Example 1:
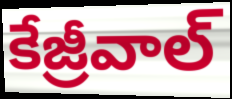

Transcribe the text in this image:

కేజ్రీవాల్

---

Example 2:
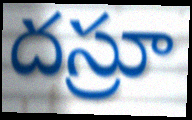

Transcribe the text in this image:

దస్రూ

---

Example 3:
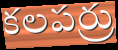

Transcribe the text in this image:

కలపర్రు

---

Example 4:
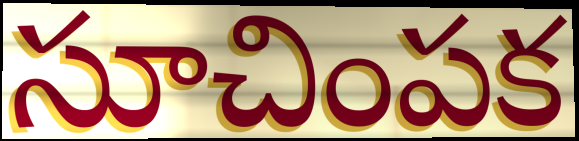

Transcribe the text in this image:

సూచింపక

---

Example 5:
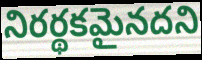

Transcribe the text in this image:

నిరర్థకమైనదని